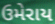
ઉમેરાય